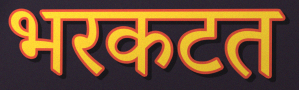
भरकटत